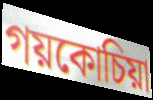
গয়কোচিয়া